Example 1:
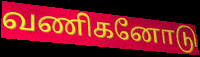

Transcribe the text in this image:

வணிகனோடு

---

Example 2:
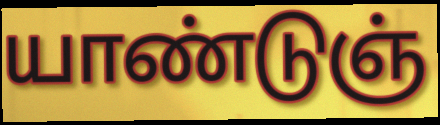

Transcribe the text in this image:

யாண்டுஞ்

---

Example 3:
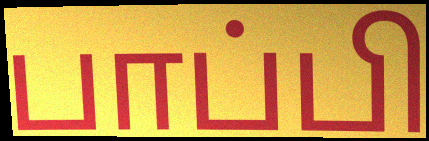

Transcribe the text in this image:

பாப்பி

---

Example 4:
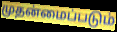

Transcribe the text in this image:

முதன்மைப்படும்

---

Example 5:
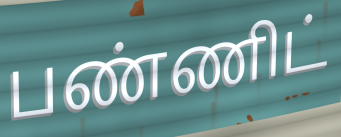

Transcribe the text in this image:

பண்ணிட்